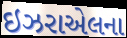
ઇઝરાએલના